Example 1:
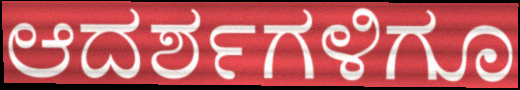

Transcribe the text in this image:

ಆದರ್ಶಗಳಿಗೂ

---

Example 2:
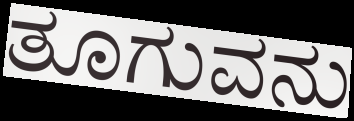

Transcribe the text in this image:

ತೂಗುವನು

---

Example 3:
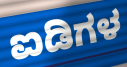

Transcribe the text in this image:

ಐಡಿಗಳ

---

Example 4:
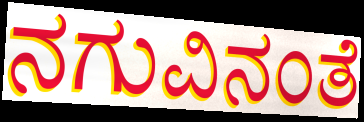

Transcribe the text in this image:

ನಗುವಿನಂತೆ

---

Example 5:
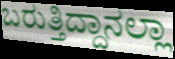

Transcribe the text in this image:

ಬರುತ್ತಿದ್ದಾನಲ್ಲಾ